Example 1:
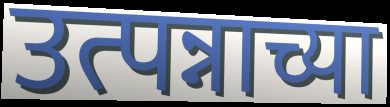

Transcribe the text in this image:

उत्पन्नाच्या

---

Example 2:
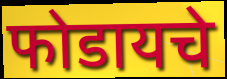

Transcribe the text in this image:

फोडायचे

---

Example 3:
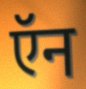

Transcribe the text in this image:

ऍन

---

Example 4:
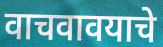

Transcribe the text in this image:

वाचवावयाचे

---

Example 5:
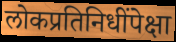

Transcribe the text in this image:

लोकप्रतिनिधींपेक्षा